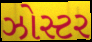
ઝોસ્ટર